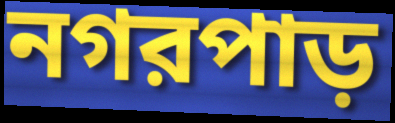
নগরপাড়